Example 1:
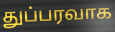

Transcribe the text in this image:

துப்பரவாக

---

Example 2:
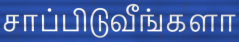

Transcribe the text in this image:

சாப்பிடுவீங்களா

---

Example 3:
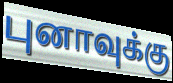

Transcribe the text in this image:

புனாவுக்கு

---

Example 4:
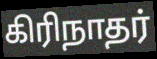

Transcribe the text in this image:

கிரிநாதர்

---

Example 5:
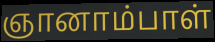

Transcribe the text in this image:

ஞானாம்பாள்